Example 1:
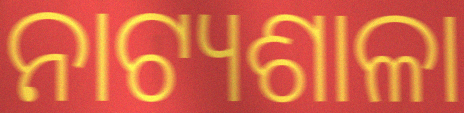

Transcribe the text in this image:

ନାଟ୍ୟଶାଳା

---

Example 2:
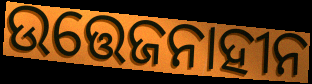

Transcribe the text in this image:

ଉତ୍ତେଜନାହୀନ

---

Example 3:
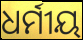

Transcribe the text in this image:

ଧର୍ମୀୟ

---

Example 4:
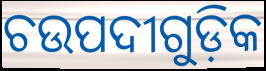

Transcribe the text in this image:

ଚଉପଦୀଗୁଡ଼ିକ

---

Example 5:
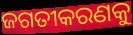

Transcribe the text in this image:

ଜଗତୀକରଣକୁ